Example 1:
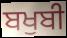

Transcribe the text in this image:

ਬਖੁਬੀ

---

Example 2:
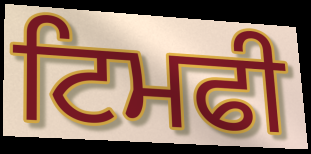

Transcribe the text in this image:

ਟਿਮਫੀ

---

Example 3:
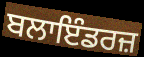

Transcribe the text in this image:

ਬਲਾਇੰਡਰਜ਼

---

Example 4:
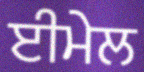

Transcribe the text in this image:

ਈਮੇਲ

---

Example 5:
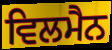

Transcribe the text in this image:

ਵਿਲਮੈਨ